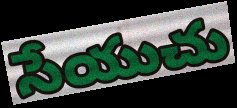
సేయుచు